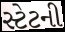
સ્ટેટની